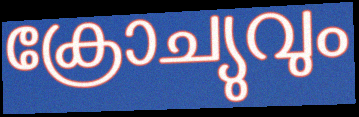
ക്രോച്യുവും